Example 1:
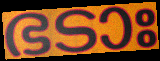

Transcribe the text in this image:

ഭടാഃ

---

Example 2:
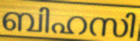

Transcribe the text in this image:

ബിഹസി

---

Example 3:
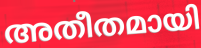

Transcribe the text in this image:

അതീതമായി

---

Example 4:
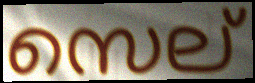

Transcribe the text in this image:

സെല്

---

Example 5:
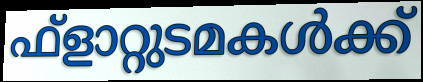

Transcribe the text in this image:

ഫ്ളാറ്റുടമകൾക്ക്